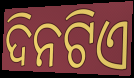
ଦିନଟିଏ